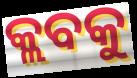
କ୍ଲବକୁ